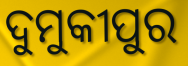
ଦୁମୁକୀପୁର